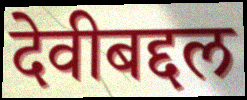
देवीबद्दल